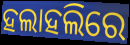
ହଲାହଲିରେ